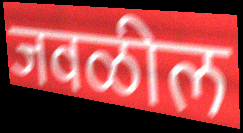
जवळील